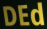
DEd